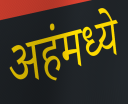
अहंमध्ये